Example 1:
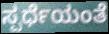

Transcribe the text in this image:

ಸ್ಪರ್ಧೆಯಂತೆ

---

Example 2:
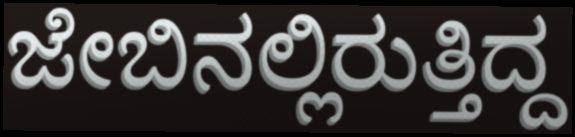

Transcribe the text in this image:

ಜೇಬಿನಲ್ಲಿರುತ್ತಿದ್ದ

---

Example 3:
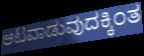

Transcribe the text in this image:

ಆಟವಾಡುವುದಕ್ಕಿಂತ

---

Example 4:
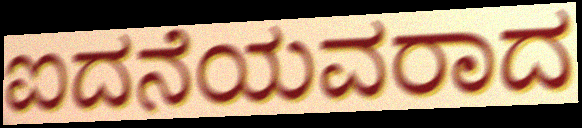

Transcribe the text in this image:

ಐದನೆಯವರಾದ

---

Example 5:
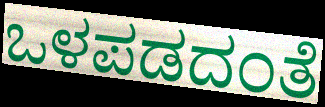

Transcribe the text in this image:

ಒಳಪಡದಂತೆ